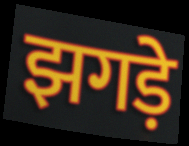
झगड़े